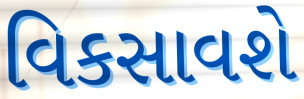
વિકસાવશે